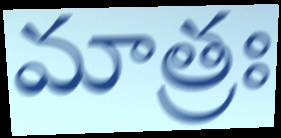
మాత్రః